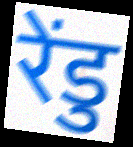
रेंडु